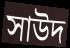
সাউদ